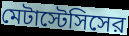
মেটাস্টেসিসের